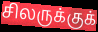
சிலருக்குக்